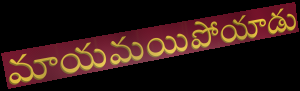
మాయమయిపోయాడు